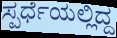
ಸ್ಪರ್ಧೆಯಲ್ಲಿದ್ದ